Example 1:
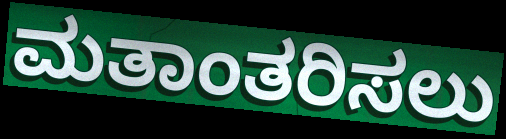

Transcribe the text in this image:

ಮತಾಂತರಿಸಲು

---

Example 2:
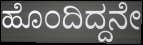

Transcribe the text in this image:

ಹೊಂದಿದ್ದನೇ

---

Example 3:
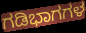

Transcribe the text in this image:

ಗಡಿಭಾಗಗಳ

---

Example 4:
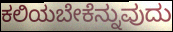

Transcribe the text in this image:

ಕಲಿಯಬೇಕೆನ್ನುವುದು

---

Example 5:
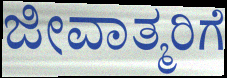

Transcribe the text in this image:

ಜೀವಾತ್ಮರಿಗೆ